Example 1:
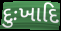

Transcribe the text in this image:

દુઃખાદિ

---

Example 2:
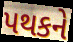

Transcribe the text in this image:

પથકને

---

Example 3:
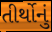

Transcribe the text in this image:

તીર્થોનું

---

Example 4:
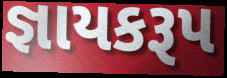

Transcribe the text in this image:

જ્ઞાયકરૂપ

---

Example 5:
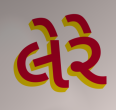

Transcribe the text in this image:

લેરે